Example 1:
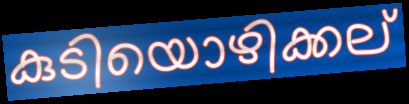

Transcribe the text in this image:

കുടിയൊഴിക്കല്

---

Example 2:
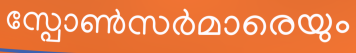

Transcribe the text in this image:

സ്പോൺസർമാരെയും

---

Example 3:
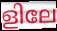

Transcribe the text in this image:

ളിലേ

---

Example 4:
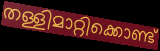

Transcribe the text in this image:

തള്ളിമാറ്റിക്കൊണ്ട്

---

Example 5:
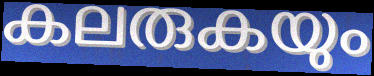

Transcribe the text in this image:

കലരുകയും